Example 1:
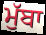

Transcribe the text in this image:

ਮੁੱਬਾ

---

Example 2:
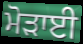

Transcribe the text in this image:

ਮੋੜਾਈ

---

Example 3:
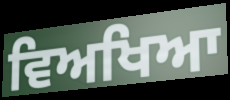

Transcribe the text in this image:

ਵਿਅਖਿਆ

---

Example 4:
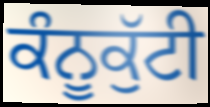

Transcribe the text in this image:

ਕੰਨੂਕੁੱਟੀ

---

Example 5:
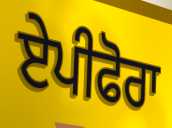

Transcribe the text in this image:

ਏਪੀਫੋਰਾ